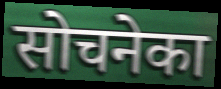
सोचनेका